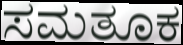
ಸಮತೂಕ